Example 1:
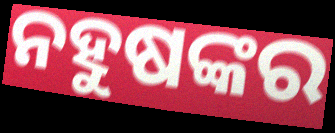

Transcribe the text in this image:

ନହୁଷଙ୍କର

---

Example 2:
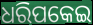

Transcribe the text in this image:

ଧରିପକେଇ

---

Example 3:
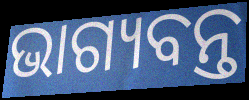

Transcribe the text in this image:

ଭାଗ୍ୟବନ୍ତ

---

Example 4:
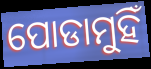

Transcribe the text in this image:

ପୋଡାମୁହିଁ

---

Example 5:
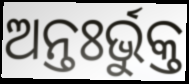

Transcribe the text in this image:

ଅନ୍ତଃର୍ଭୁକ୍ତ